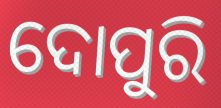
ଦୋପୁରି